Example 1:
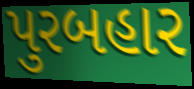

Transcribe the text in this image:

પુરબહાર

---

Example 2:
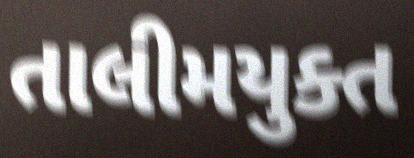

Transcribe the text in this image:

તાલીમયુક્ત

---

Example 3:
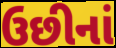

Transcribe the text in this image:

ઉછીનાં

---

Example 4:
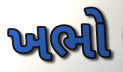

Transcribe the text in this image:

ખભો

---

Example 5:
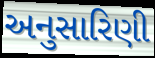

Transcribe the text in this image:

અનુસારિણી